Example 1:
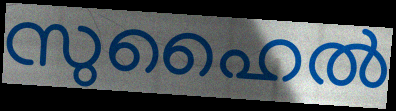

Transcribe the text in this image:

സുഹൈൽ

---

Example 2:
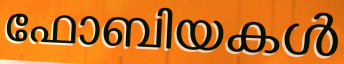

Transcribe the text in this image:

ഫോബിയകൾ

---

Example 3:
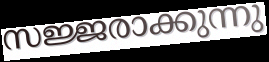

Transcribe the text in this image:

സജ്ജരാക്കുന്നു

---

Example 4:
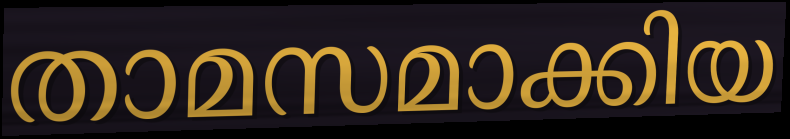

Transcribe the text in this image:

താമസമാക്കിയ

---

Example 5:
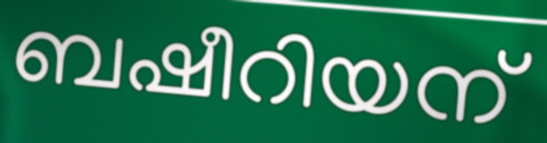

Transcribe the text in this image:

ബഷീറിയന്